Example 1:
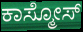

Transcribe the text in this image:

ಕಾಸ್ಮೋಸ್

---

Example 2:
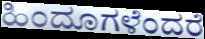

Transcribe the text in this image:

ಹಿಂದೂಗಳೆಂದರೆ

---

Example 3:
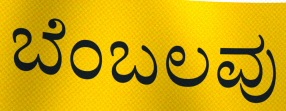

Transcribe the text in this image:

ಬೆಂಬಲವು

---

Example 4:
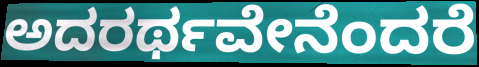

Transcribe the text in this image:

ಅದರರ್ಥವೇನೆಂದರೆ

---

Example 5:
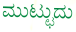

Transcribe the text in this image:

ಮುಟ್ಟುದು